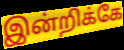
இன்றிக்கே